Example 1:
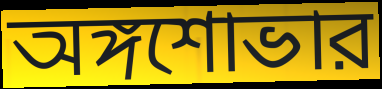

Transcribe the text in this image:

অঙ্গশোভার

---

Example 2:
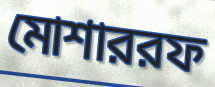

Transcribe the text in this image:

মোশাররফ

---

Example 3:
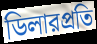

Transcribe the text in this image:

ডিলারপ্রতি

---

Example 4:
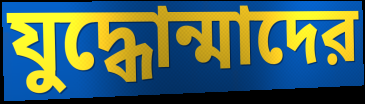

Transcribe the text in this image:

যুদ্ধোন্মাদের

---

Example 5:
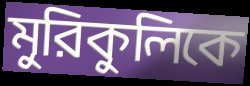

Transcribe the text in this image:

মুরিকুলিকে